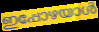
ഇപ്പോഴയാൾ